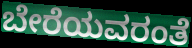
ಬೇರೆಯವರಂತೆ